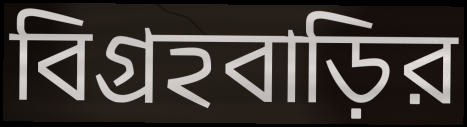
বিগ্রহবাড়ির